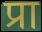
प्रा